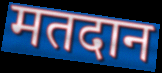
मतदान